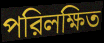
পরিলক্ষিত